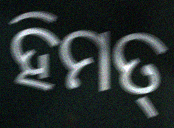
ହିମତ୍